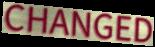
CHANGED